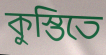
কুস্তিতে